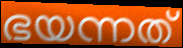
ഭയന്നത്